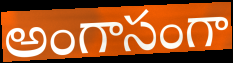
అంగాసంగా